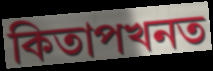
কিতাপখনত